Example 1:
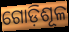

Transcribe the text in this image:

ଗୋଡ଼ିଶୂଳ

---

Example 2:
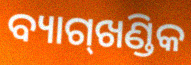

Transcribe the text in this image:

ବ୍ୟାଗ୍‌ଖଣ୍ଡିକ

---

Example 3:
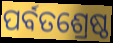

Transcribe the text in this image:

ପର୍ବତଶ୍ରେଷ୍ଠ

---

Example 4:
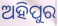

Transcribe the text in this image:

ଅହିପୁର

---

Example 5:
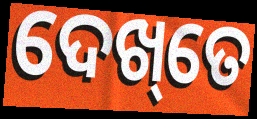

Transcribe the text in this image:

ଦେଖ୍‌ତେ